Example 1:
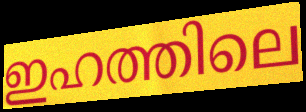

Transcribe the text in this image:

ഇഹത്തിലെ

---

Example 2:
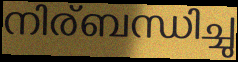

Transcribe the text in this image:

നിര്ബന്ധിച്ചു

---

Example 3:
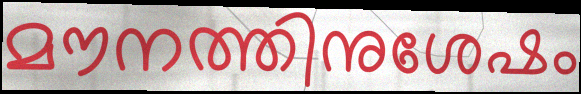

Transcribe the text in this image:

മൗനത്തിനുശേഷം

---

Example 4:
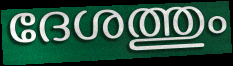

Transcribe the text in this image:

ദേശത്തും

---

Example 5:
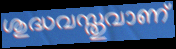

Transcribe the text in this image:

ശുദ്ധവസ്തുവാണ്